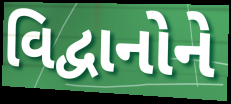
વિદ્વાનોને